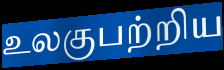
உலகுபற்றிய